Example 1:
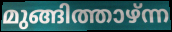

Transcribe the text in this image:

മുങ്ങിത്താഴ്ന്ന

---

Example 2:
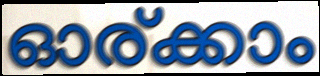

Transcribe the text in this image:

ഓര്ക്കാം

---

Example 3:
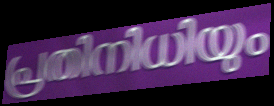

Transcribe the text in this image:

പ്രതിനിധിയും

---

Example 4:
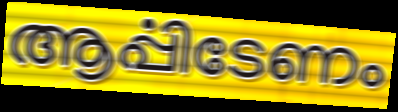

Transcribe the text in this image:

ആൎപ്പിടേണം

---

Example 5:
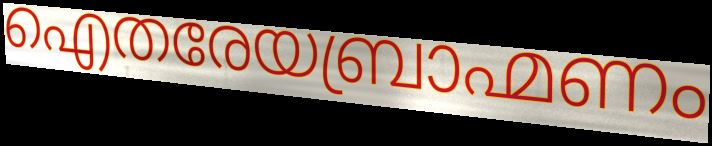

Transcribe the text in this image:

ഐതരേയബ്രാഹ്മണം